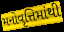
મનોવૃત્તિમાંથી